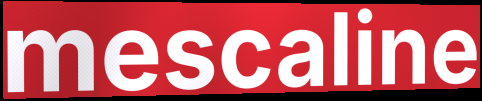
mescaline